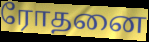
ரோதனை